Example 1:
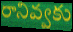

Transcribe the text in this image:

రానివ్వకు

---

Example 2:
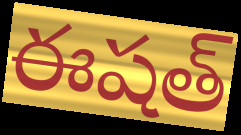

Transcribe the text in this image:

ఈషత్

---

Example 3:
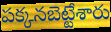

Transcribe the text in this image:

పక్కనబెట్టేశారు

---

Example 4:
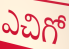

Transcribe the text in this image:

ఎచిగో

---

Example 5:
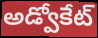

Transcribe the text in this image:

అడ్వోకేట్